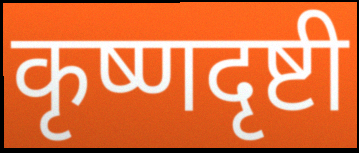
कृष्णदृष्टी